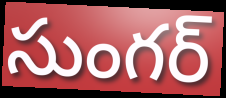
సుంగర్